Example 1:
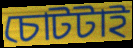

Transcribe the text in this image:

চোটটাই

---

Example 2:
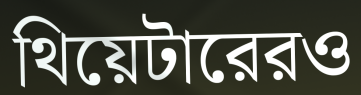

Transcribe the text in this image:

থিয়েটারেরও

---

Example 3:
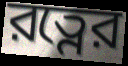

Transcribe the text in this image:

রত্নের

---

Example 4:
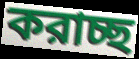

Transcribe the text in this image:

করাচ্ছ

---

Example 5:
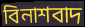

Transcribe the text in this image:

বিনাশবাদ